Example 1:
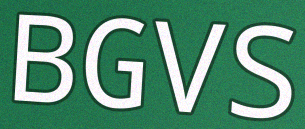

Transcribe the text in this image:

BGVS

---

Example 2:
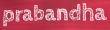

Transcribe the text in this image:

prabandha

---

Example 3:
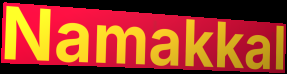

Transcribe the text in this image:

Namakkal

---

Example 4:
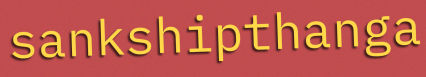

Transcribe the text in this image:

sankshipthanga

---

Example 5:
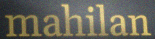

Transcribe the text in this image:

mahilan